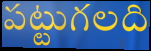
పట్టుగలది